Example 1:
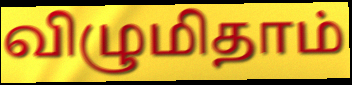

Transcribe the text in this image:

விழுமிதாம்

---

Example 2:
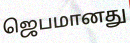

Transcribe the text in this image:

ஜெபமானது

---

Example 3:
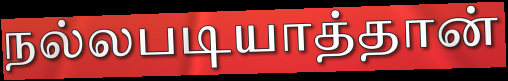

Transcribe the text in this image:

நல்லபடியாத்தான்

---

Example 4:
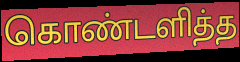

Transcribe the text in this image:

கொண்டளித்த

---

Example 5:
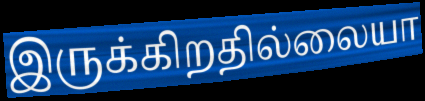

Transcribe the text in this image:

இருக்கிறதில்லையா